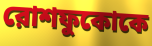
রোশফুকোকে